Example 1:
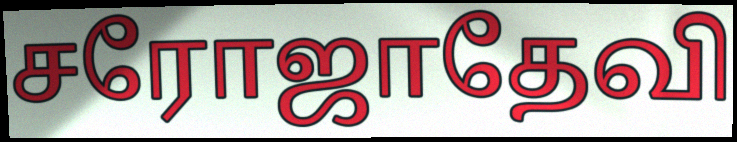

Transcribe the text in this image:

சரோஜாதேவி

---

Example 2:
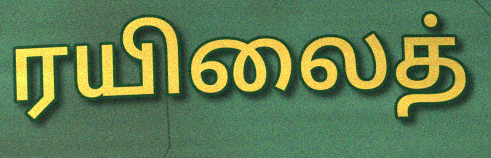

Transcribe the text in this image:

ரயிலைத்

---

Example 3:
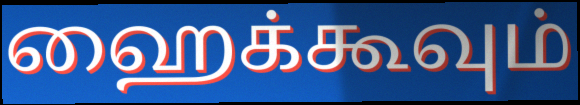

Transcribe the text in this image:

ஹைக்கூவும்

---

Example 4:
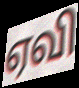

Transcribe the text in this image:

ஏவி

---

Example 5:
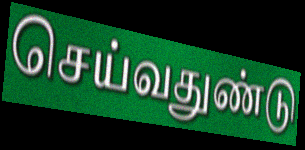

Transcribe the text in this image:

செய்வதுண்டு